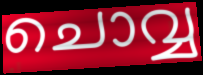
ചൊവ്വ